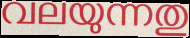
വലയുന്നതു